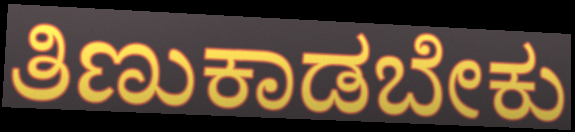
ತಿಣುಕಾಡಬೇಕು